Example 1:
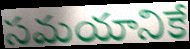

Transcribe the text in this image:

సమయానికే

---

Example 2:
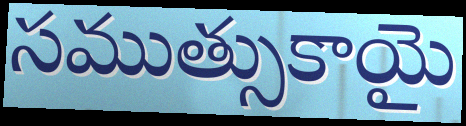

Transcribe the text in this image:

సముత్సుకాయై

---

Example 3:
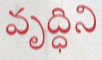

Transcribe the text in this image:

వృద్ధిని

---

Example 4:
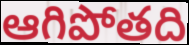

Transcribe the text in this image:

ఆగిపోతది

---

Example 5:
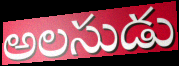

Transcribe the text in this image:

అలసుడు